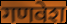
गणवेश